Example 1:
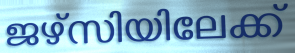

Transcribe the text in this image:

ജഴ്സിയിലേക്ക്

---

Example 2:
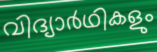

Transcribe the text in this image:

വിദ്യാർഥികളും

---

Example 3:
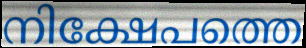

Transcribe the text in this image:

നിക്ഷേപത്തെ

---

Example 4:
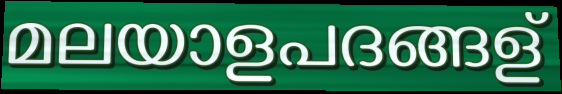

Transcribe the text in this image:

മലയാളപദങ്ങള്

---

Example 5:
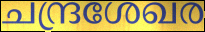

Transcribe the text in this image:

ചന്ദ്രശേഖര